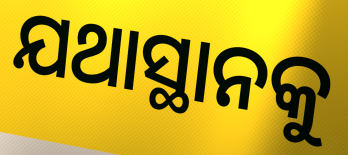
ଯଥାସ୍ଥାନକୁ